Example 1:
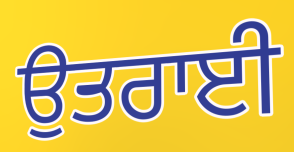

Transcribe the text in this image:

ਉਤਰਾਈ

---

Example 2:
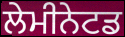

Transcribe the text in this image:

ਲੇਮੀਨੇਟਡ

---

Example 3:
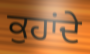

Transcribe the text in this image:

ਕੁਹਾਂਦੇ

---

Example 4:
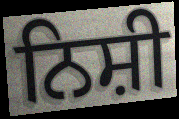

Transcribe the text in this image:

ਨਿਸ਼ੀ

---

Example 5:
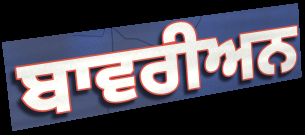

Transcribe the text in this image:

ਬਾਵਰੀਅਨ